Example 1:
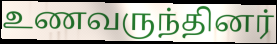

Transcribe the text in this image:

உணவருந்தினர்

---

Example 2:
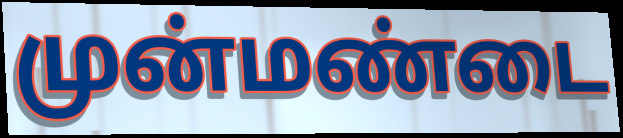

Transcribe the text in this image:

முன்மண்டை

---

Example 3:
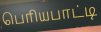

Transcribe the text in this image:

பெரியபாட்டி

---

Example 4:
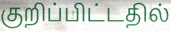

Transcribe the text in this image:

குறிப்பிட்டதில்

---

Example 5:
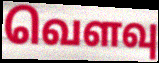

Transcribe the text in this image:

வெளவு